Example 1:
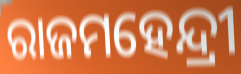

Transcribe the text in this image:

ରାଜମହେନ୍ଦ୍ରୀ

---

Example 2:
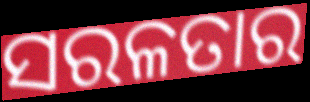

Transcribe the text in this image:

ସରଳତାର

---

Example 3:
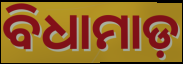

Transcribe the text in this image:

ବିଧାମାଡ଼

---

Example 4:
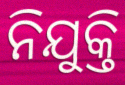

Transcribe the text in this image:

ନିଯୁକ୍ତି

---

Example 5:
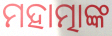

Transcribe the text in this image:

ମହାତ୍ମାଙ୍କ